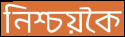
নিশ্চয়কৈ